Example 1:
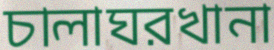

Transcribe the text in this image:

চালাঘরখানা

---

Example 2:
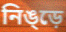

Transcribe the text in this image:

নিঙ্ড়ে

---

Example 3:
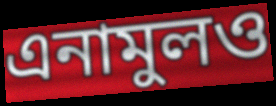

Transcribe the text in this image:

এনামুলও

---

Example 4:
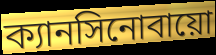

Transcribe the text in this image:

ক্যানসিনোবায়ো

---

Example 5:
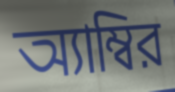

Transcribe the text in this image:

অ্যাম্বির